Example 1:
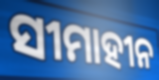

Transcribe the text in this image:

ସୀମାହୀନ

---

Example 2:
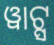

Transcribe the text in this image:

ୱାଟ୍ସ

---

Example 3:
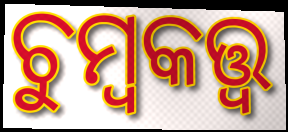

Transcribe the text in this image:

ଚୁମ୍ବକତ୍ତ୍ୱ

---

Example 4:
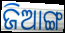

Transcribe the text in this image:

ଜିଆଙ୍ଗ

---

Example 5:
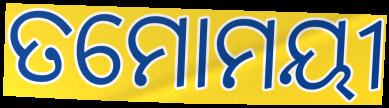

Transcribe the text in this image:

ତମୋମୟୀ